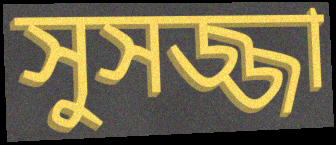
সুসজ্জা